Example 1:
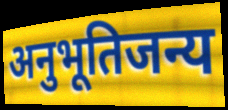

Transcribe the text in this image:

अनुभूतिजन्य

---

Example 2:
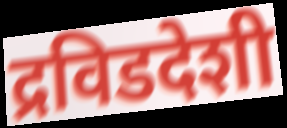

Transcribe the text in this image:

द्रविडदेशी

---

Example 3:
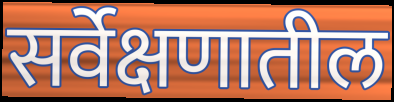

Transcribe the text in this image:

सर्वेक्षणातील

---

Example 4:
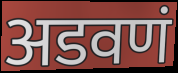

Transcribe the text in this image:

अडवणं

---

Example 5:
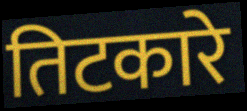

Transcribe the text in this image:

तिटकारे